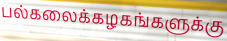
பல்கலைக்கழகங்களுக்கு